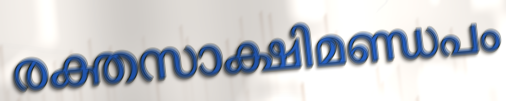
രക്തസാക്ഷിമണ്ഡപം